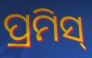
ପ୍ରମିସ୍